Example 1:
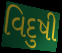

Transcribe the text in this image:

વિદુષી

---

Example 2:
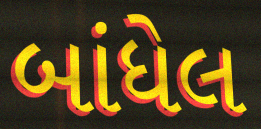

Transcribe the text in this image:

બાંધેલ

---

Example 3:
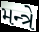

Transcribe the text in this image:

મન્ત્રે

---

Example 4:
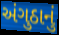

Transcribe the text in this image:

અંગુઠાનું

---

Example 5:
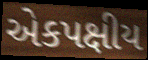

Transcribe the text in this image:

એકપક્ષીય